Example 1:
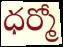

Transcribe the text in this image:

ధర్మో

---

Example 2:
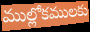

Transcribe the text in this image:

ముల్లోకములకు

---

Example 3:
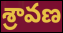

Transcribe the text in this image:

శ్రావణ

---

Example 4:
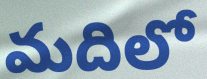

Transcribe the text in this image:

మదిలో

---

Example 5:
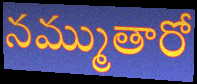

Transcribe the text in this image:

నమ్ముతారో